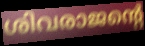
ശിവരാജന്റെ